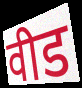
वीड